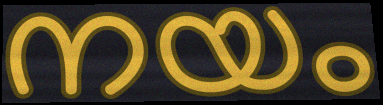
നയം